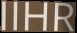
IIHR